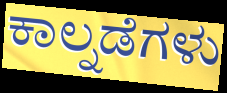
ಕಾಲ್ನಡೆಗಳು